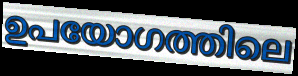
ഉപയോഗത്തിലെ